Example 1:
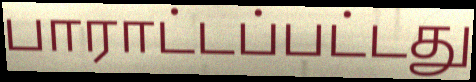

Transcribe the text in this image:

பாராட்டப்பட்டது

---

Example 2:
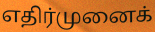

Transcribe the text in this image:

எதிர்முனைக்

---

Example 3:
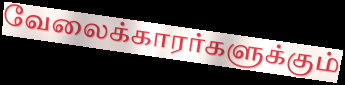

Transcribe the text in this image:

வேலைக்காரர்களுக்கும்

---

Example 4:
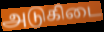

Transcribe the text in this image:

அடுகிடை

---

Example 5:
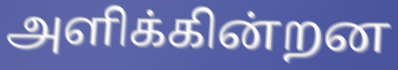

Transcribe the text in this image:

அளிக்கின்றன